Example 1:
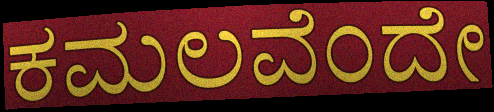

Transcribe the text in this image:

ಕಮಲವೆಂದೇ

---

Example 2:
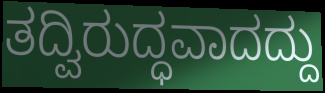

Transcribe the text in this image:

ತದ್ವಿರುದ್ಧವಾದದ್ದು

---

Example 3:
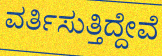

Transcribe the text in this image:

ವರ್ತಿಸುತ್ತಿದ್ದೇವೆ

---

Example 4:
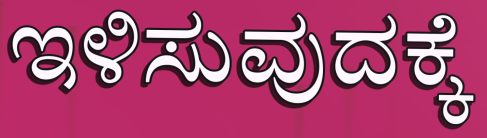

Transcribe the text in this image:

ಇಳಿಸುವುದಕ್ಕೆ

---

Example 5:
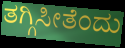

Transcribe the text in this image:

ತಗ್ಗಿಸೀತೆಂದು